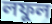
লফুল